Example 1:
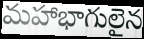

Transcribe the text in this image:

మహాభాగులైన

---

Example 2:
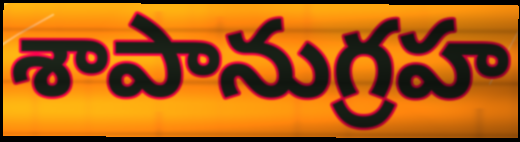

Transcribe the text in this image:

శాపానుగ్రహ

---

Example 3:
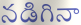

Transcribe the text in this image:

నడిగినా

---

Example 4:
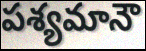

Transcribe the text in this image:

పశ్యమానౌ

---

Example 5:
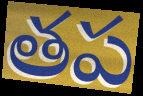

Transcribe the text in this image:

తప